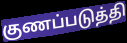
குணப்படுத்தி